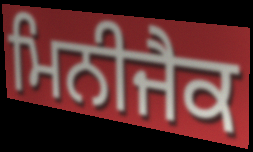
ਮਿਨੀਜੈਕ